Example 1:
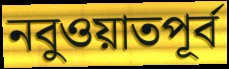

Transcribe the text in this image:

নবুওয়াতপূর্ব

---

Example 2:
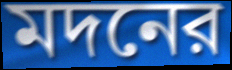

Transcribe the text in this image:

মদনের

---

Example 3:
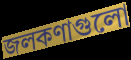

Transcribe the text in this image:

জলকণাগুলো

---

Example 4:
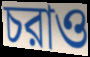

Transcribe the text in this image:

চরাও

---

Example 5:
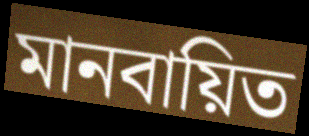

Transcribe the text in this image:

মানবায়িত